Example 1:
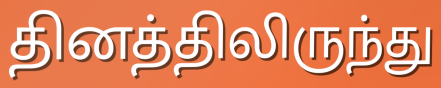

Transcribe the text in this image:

தினத்திலிருந்து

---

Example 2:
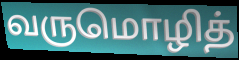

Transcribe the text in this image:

வருமொழித்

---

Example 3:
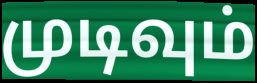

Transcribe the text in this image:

முடிவும்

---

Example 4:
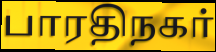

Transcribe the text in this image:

பாரதிநகர்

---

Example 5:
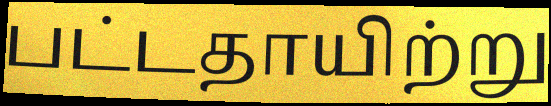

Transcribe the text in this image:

பட்டதாயிற்று